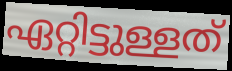
ഏറ്റിട്ടുള്ളത്